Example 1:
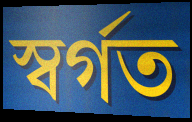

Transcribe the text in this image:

স্বৰ্গত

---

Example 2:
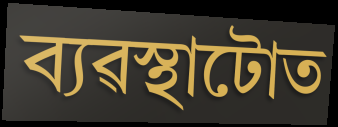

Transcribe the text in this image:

ব্যৱস্থাটোত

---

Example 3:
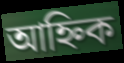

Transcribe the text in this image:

আহ্নিক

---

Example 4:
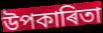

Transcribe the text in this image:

উপকাৰিতা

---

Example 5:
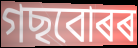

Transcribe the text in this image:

গছবোৰৰ